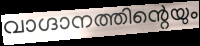
വാഗ്ദാനത്തിന്റെയും